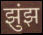
झुंझ